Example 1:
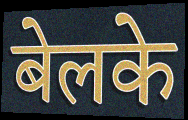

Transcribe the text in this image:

बेलके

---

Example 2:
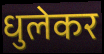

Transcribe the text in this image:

धुलेकर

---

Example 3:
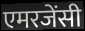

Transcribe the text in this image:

एमरजेंसी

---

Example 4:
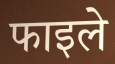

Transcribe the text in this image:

फाइले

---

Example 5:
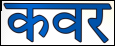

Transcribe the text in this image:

कवर